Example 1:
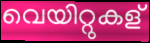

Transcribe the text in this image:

വെയിറ്റുകള്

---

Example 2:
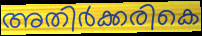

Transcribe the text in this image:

അതിർക്കരികെ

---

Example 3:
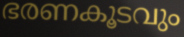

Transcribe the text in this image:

ഭരണകൂടവും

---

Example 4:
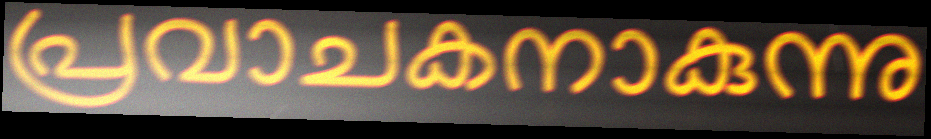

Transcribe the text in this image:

പ്രവാചകനാകുന്നു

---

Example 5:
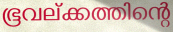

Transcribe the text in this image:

ഭൂവല്ക്കത്തിന്റെ